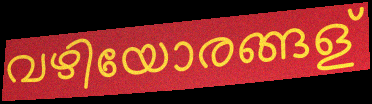
വഴിയോരങ്ങള്